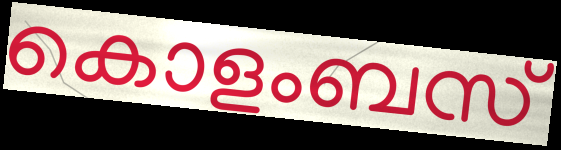
കൊളംബസ്